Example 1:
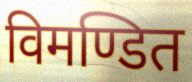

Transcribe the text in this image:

विमण्डित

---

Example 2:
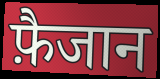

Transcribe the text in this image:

फ़ैजान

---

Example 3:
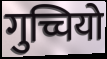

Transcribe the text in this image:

गुच्चियो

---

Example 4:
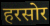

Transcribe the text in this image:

हरसोर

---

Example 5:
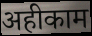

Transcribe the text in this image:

अहीकाम